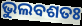
ଭୁଲବଶତଃ